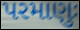
પરમાણુઃ